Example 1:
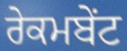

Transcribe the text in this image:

ਰੇਕਮਬੇਂਟ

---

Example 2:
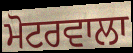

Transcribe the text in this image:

ਮੋਟਰਵਾਲਾ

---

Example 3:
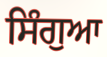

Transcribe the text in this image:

ਸਿੰਗੁਆ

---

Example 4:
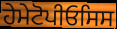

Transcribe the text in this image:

ਹੇਮੇਟੋਪੀਓਸਿਸ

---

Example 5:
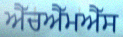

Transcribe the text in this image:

ਐੱਚਐੱਮਐੱਸ